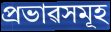
প্ৰভাৱসমূহ